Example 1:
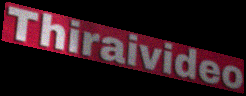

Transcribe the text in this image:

Thiraivideo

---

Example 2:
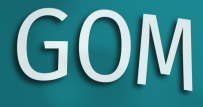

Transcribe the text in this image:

GOM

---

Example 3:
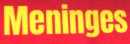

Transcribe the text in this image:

Meninges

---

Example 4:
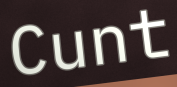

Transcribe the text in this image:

Cunt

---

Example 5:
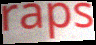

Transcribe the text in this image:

raps